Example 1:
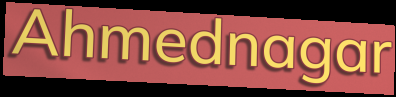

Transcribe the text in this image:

Ahmednagar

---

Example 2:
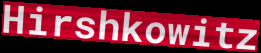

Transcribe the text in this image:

Hirshkowitz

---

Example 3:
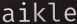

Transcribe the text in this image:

aikle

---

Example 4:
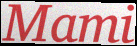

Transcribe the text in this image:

Mami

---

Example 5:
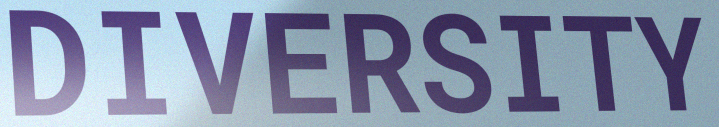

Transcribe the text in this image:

DIVERSITY